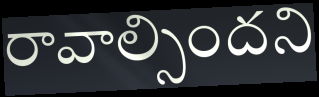
రావాల్సిందని